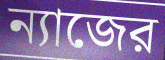
ন্যাজের